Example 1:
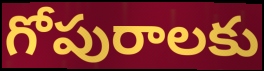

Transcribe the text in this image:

గోపురాలకు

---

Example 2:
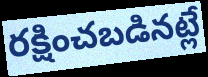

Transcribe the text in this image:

రక్షించబడినట్లే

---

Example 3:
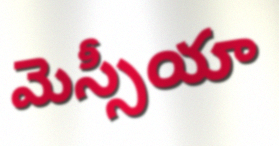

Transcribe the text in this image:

మెస్సీయా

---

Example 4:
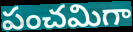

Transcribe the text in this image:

పంచమిగా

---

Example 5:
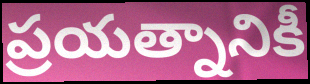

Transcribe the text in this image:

ప్రయత్నానికీ